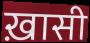
ख़ासी